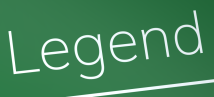
Legend